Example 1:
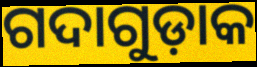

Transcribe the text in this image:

ଗଦାଗୁଡ଼ାକ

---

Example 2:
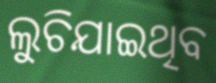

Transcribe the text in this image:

ଲୁଚିଯାଇଥିବ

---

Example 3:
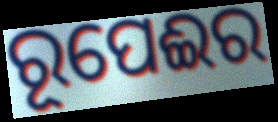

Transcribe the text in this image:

ରୂପେଈର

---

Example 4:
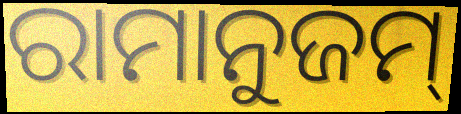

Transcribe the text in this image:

ରାମାନୁଜମ୍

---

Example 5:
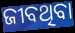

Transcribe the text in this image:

ଜୀବଥିବା